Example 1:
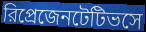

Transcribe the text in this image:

রিপ্রেজেনটেটিভসে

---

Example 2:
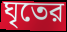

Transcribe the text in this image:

ঘৃতের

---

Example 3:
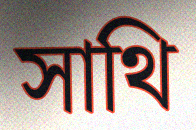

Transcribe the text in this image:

সাথি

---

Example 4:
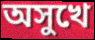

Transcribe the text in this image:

অসুখে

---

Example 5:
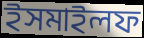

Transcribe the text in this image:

ইসমাইলফ